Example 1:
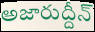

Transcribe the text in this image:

అజారుద్దీన్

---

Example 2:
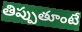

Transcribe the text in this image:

తిప్పుతూంటే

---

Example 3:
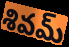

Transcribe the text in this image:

శివమ్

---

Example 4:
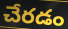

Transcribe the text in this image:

చేరడం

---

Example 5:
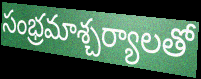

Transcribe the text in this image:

సంభ్రమాశ్చర్యాలతో